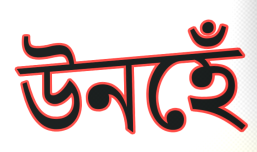
উনহেঁ